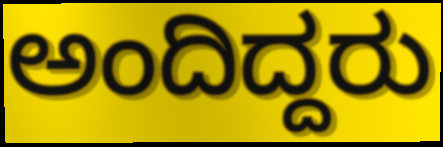
ಅಂದಿದ್ದರು